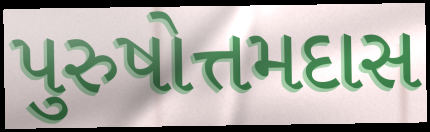
પુરુષોત્તમદાસ